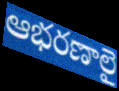
ఆభరణాలై